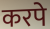
करपे